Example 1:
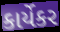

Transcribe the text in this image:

કાર્યેકર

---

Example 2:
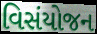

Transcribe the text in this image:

વિસંયોજન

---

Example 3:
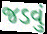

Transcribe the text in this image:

જડવું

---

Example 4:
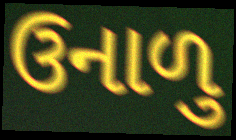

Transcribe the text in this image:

ઉનાળુ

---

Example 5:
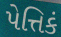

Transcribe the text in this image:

પેત્તિકં